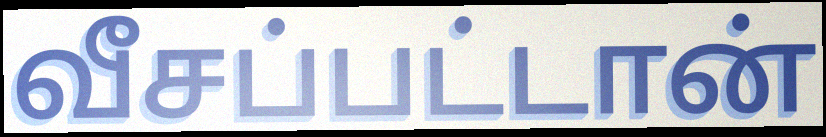
வீசப்பட்டான்